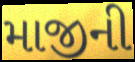
માજીની